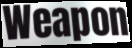
Weapon